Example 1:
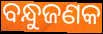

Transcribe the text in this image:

ବନ୍ଧୁଜଣକ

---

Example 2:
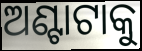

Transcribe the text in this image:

ଅଣ୍ଟାଟାକୁ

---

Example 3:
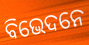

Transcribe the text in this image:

ବିଭେଦନେ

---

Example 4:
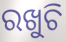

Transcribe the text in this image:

ରଖୁଚି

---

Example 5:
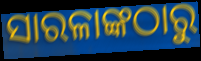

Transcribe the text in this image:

ସାରଳାଙ୍କଠାରୁ